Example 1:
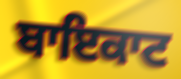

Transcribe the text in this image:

ਬਾਇਕਾਟ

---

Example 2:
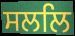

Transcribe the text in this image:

ਸਲਲਿ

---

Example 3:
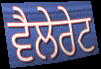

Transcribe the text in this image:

ਵੈਲੇਰੇਟ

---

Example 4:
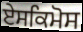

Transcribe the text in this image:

ਏਸਕਿਮੋਸ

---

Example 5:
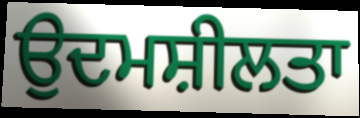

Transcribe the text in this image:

ਉਦਮਸ਼ੀਲਤਾ